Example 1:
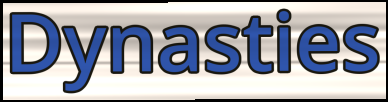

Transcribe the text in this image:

Dynasties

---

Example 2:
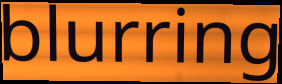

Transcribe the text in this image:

blurring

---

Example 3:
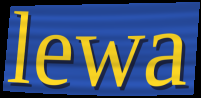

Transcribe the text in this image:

lewa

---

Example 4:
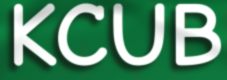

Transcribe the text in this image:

KCUB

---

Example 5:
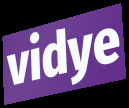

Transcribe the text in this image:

vidye